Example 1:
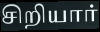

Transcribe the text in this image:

சிறியார்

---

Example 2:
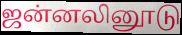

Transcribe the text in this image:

ஜன்னலினூடு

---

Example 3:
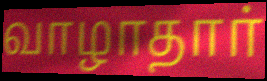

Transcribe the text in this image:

வாழாதார்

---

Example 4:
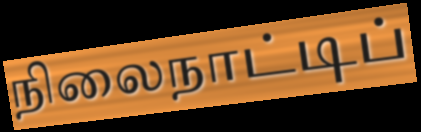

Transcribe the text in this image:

நிலைநாட்டிப்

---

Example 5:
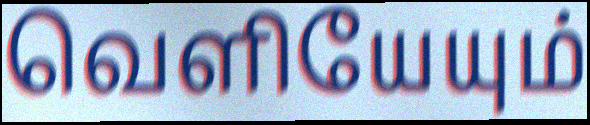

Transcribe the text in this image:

வெளியேயும்